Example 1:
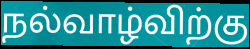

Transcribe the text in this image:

நல்வாழ்விற்கு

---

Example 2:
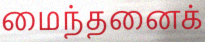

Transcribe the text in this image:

மைந்தனைக்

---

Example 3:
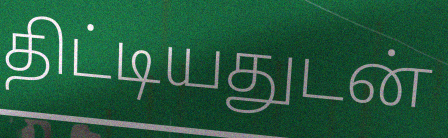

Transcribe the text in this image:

திட்டியதுடன்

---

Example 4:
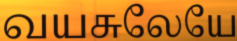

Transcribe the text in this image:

வயசுலேயே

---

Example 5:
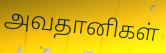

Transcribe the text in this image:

அவதானிகள்